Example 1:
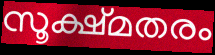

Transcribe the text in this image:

സൂക്ഷ്മതരം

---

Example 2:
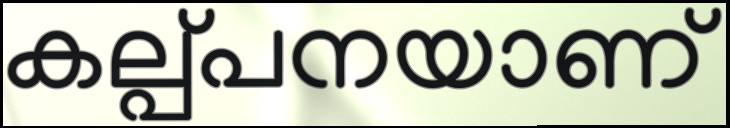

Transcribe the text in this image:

കല്പ്പനയാണ്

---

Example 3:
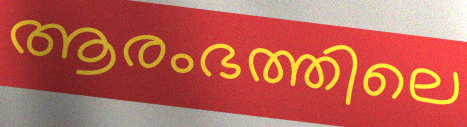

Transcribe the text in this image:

ആരംഭത്തിലെ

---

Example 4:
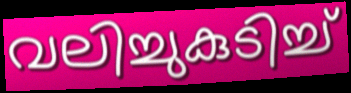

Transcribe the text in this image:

വലിച്ചുകുടിച്ച്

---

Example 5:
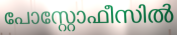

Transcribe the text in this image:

പോസ്റ്റോഫീസിൽ